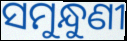
ସମୁନ୍ଧୁଣୀ